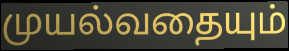
முயல்வதையும்